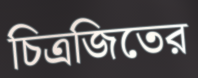
চিত্রজিতের